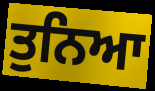
ਤੁਨਿਆ